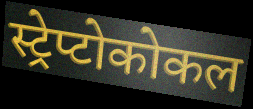
स्ट्रेप्टोकोकल